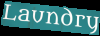
Laundry